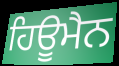
ਹਿਊਮੈਨ